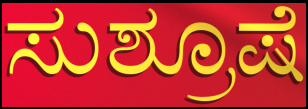
ಸುಶ್ರೂಷೆ